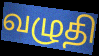
வழுதி